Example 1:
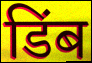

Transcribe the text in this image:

डिंब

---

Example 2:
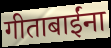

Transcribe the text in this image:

गीताबाईंना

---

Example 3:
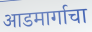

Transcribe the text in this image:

आडमार्गाचा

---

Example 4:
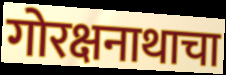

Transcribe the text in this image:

गोरक्षनाथाचा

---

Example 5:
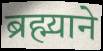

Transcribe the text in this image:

ब्रह्म्याने